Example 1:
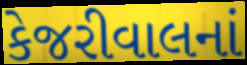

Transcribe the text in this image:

કેજરીવાલનાં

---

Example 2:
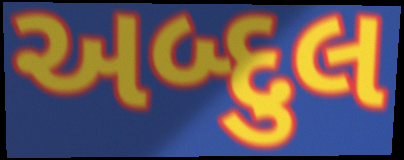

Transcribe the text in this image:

અબ્દુલ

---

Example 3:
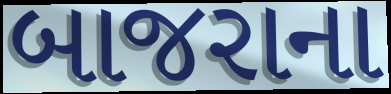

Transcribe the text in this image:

બાજરાના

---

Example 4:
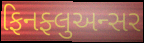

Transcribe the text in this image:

ફિનફ્લુઅન્સર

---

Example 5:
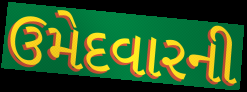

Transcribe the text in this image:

ઉમેદવારની